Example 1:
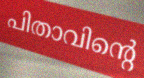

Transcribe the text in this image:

പിതാവിന്റെ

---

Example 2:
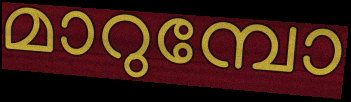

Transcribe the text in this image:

മാറുമ്പോ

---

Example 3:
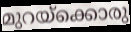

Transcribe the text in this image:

മുറയ്ക്കൊരു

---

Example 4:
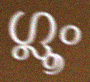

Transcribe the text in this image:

ഗ്ലൂം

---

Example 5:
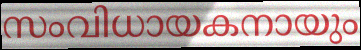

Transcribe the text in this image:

സംവിധായകനായും